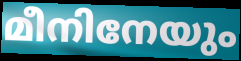
മീനിനേയും